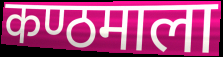
कण्ठमाला